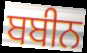
ਬਬੀਨ